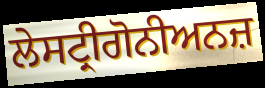
ਲੇਸਟ੍ਰੀਗੋਨੀਅਨਜ਼